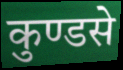
कुण्डसे